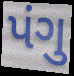
પંગુ